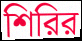
শিরির